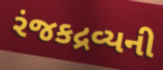
રંજકદ્રવ્યની